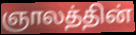
ஞாலத்தின்